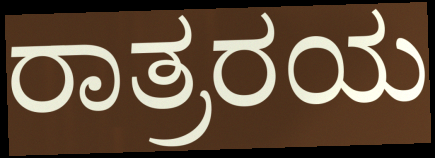
ರಾತ್ರರಯ